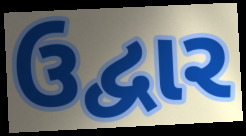
ઉદ્વાર